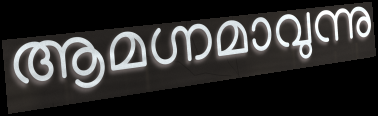
ആമഗ്നമാവുന്നു